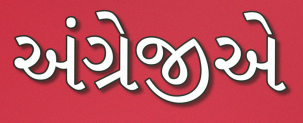
અંગ્રેજીએ